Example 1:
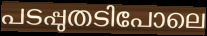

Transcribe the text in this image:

പടപ്പുതടിപോലെ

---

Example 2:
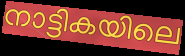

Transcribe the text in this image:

നാട്ടികയിലെ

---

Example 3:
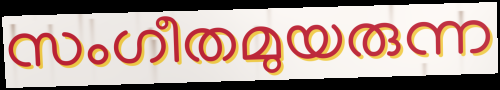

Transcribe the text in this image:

സംഗീതമുയരുന്ന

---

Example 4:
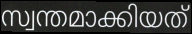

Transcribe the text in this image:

സ്വന്തമാക്കിയത്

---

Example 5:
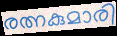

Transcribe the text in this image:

രത്നകുമാരി